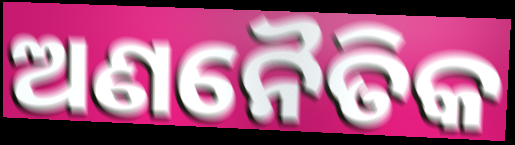
ଅଣନୈତିକ